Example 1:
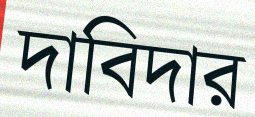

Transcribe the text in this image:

দাবিদার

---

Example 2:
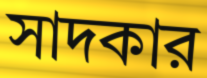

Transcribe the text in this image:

সাদকার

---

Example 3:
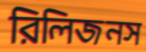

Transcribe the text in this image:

রিলিজনস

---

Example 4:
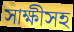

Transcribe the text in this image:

সাক্ষীসহ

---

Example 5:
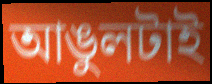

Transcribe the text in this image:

আঙুলটাই